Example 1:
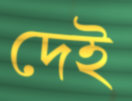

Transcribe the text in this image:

দেই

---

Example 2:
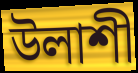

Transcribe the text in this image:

উলাশী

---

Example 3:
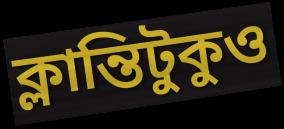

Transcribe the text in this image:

ক্লান্তিটুকুও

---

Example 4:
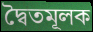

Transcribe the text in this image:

দ্বৈতমূলক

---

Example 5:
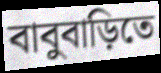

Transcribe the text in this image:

বাবুবাড়িতে